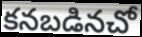
కనబడినచో